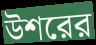
উশরের